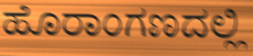
ಹೊರಾಂಗಣದಲ್ಲಿ